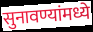
सुनावण्यांमध्ये